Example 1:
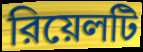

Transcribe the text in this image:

রিয়েলটি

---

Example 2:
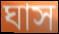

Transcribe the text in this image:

ঘাস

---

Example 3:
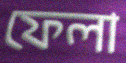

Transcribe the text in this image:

ফেলা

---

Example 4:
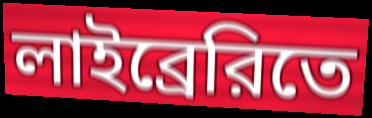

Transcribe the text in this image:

লাইব্রেরিতে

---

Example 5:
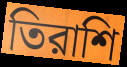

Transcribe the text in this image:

তিরাশি